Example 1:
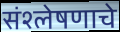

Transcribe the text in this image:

संश्लेषणाचे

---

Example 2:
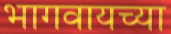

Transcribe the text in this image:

भागवायच्या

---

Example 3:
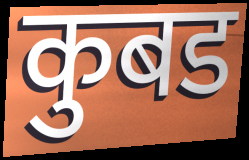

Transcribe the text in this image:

कुबड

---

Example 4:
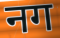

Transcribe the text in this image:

नग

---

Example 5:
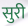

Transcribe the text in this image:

सुरी